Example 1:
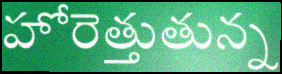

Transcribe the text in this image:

హోరెత్తుతున్న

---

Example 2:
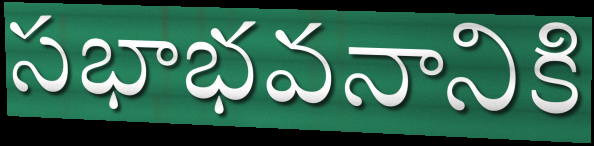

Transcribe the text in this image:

సభాభవనానికి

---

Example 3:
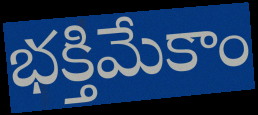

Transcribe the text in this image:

భక్తిమేకాం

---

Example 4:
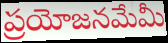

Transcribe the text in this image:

ప్రయోజనమేమీ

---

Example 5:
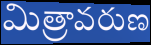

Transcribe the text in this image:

మిత్రావరుణ